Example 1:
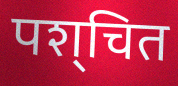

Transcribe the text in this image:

पश्चित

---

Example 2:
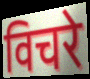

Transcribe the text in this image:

विचरे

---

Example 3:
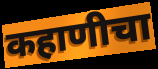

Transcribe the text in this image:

कहाणीचा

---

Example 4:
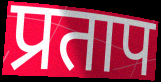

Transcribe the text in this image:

प्रताप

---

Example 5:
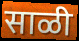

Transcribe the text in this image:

साळी